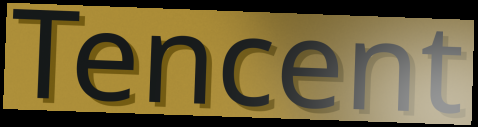
Tencent